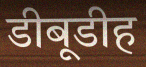
डीबूडीह